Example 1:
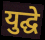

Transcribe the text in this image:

युद्घे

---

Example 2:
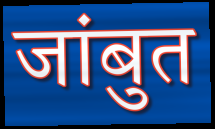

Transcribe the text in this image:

जांबुत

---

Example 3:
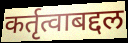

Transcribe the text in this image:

कर्तृत्वाबद्दल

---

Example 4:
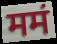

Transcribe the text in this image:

ममं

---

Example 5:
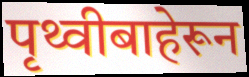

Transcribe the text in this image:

पृथ्वीबाहेरून